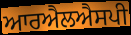
ਆਰਐਲਐਸਪੀ